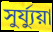
সুর্য্যুয়া